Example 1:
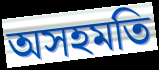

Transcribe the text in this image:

অসহমতি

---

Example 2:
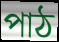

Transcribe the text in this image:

পাঠ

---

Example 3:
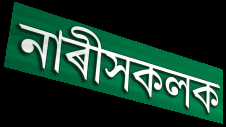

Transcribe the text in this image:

নাৰীসকলক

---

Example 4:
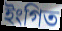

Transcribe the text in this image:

ইংগিত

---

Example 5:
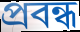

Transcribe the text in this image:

প্ৰবন্ধ